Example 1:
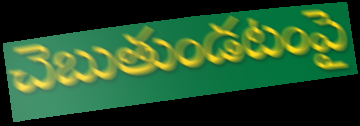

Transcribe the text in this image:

చెబుతుండటంపై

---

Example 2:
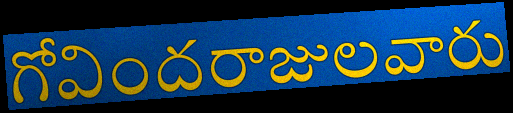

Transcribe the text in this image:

గోవిందరాజులవారు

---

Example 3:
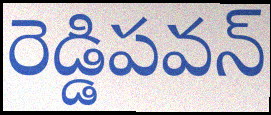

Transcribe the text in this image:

రెడ్డిపవన్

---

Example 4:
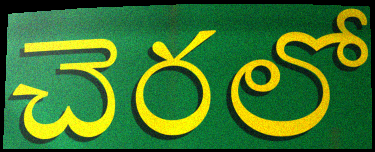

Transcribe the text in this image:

చెరలో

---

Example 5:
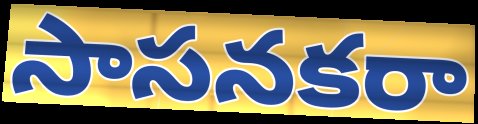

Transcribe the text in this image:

సాసనకరా